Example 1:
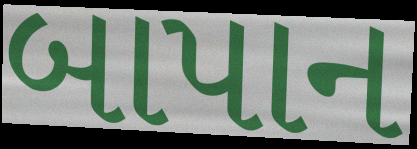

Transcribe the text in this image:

બાપાન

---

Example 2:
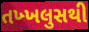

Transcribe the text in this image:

તખ્ખલુસથી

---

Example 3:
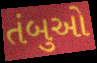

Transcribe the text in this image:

તંબુઓ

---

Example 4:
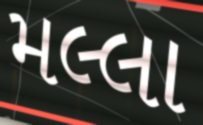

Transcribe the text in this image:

મલ્લા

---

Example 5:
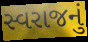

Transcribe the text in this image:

સ્વરાજનું